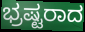
ಭ್ರಷ್ಟರಾದ